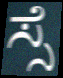
ಸ್ಸೆ